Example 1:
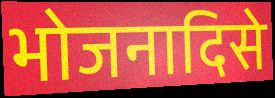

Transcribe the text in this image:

भोजनादिसे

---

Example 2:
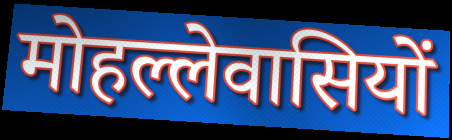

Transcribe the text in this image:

मोहल्लेवासियों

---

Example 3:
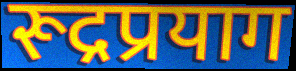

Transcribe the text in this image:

रूद्रप्रयाग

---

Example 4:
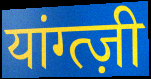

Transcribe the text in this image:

यांग्त्ज़ी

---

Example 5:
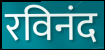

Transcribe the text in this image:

रविनंद